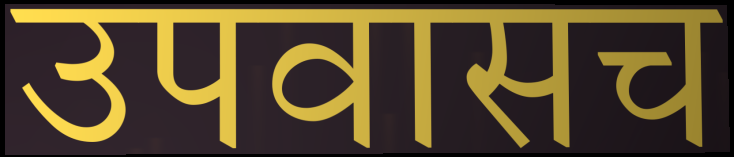
उपवासच